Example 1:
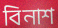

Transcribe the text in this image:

বিনাশ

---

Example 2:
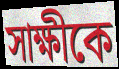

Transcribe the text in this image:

সাক্ষীকে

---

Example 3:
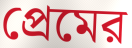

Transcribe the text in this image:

প্রেমের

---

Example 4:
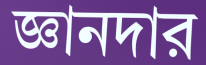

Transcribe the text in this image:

জ্ঞানদার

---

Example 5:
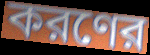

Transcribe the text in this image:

করণের